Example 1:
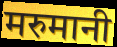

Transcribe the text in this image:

मरुमानी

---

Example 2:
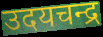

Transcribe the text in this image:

उदयचन्द्र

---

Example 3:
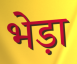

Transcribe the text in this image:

भेड़ा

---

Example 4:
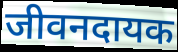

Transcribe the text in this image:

जीवनदायक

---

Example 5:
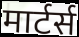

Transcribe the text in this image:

मार्टर्स